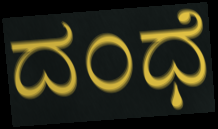
ದಂಧೆ